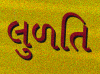
લુળતિ